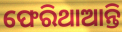
ଫେରିଥାଆନ୍ତି